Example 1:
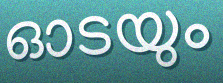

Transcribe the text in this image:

ഓടയും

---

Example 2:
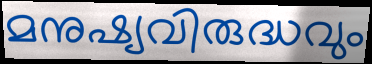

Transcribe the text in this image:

മനുഷ്യവിരുദ്ധവും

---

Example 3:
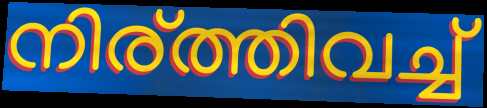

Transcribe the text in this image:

നിര്ത്തിവച്ച്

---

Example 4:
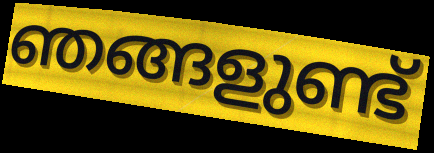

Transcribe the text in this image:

ഞങ്ങളുണ്ട്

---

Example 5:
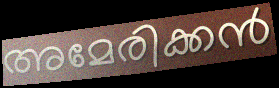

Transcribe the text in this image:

അമേരിക്കൻ